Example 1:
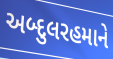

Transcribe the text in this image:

અબ્દુલરહમાને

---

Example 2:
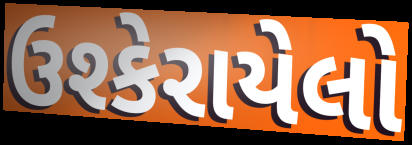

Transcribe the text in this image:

ઉશ્કેરાયેલો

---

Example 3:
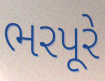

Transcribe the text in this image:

ભરપૂરે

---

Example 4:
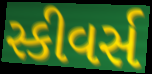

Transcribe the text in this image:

સ્કીવર્સ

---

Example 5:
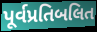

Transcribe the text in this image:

પૂર્વપ્રતિબલિત